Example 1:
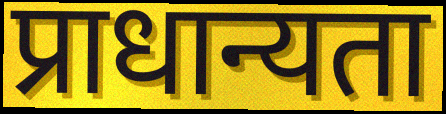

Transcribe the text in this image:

प्राधान्यता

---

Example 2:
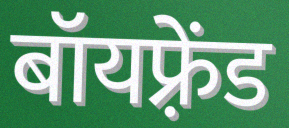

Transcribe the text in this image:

बॉयफ़्रेंड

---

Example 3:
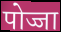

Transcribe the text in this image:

पोज्जा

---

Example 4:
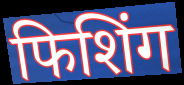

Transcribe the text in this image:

फिशिंग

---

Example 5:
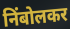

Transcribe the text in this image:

निंबोलकर